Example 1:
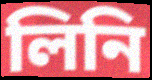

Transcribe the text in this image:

লিনি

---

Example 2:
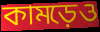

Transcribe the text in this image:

কামড়েও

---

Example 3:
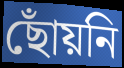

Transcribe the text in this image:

ছোঁয়নি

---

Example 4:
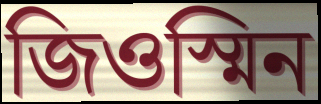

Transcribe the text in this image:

জিওস্মিন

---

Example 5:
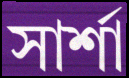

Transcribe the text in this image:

সার্শা